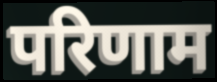
परिणाम